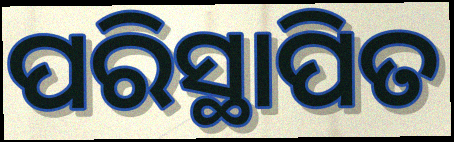
ପରିସ୍ଥାପିତ